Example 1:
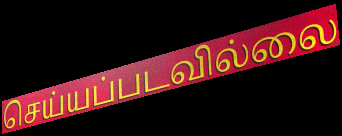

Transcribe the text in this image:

செய்யப்படவில்லை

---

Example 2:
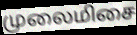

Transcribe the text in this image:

முலைமிசை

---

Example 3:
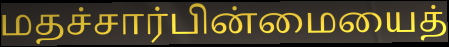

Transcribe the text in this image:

மதச்சார்பின்மையைத்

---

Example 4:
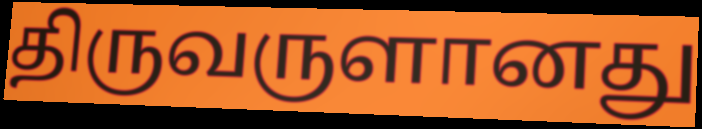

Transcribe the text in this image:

திருவருளானது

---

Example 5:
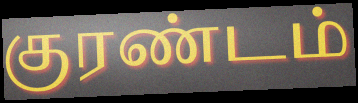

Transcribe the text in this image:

குரண்டம்